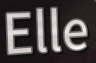
Elle